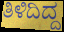
ತಿಳಿದಿದ್ದ